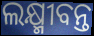
ଲକ୍ଷ୍ମୀବନ୍ତ